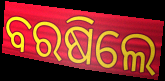
ବରଷିଲେ